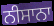
ਨੀਸਾਨਾ